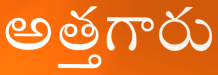
అత్తగారు